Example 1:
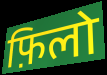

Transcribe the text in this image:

फ़िलो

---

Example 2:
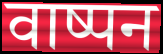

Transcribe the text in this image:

वाष्पन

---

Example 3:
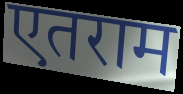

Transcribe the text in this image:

एतराम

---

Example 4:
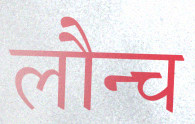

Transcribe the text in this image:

लौन्च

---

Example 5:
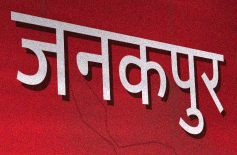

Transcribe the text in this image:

जनकपुर